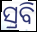
ସ୍ରବି